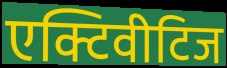
एक्टिवीटिज